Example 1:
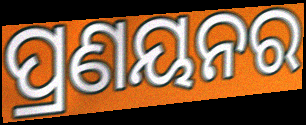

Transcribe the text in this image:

ପ୍ରଣୟନର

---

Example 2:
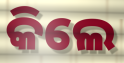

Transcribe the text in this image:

କିଲେ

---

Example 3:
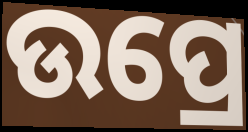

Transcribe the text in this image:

ଉପ୍ରେ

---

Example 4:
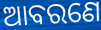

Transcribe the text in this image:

ଆବରଣେ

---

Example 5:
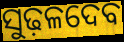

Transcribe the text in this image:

ସୁଢ଼ଳଦେବ